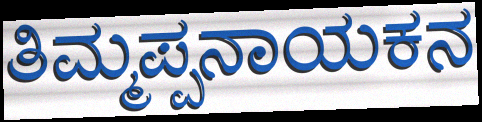
ತಿಮ್ಮಪ್ಪನಾಯಕನ